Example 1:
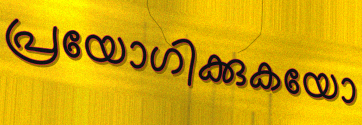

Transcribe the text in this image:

പ്രയോഗിക്കുകയോ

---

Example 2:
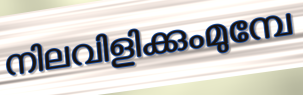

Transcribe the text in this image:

നിലവിളിക്കുംമുമ്പേ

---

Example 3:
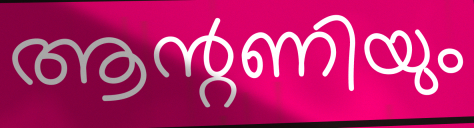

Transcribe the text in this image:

ആന്റണിയും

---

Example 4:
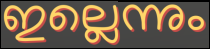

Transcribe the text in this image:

ഇല്ലെന്നും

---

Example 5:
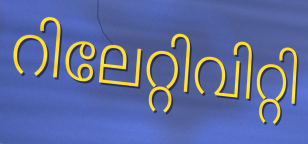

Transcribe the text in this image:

റിലേറ്റിവിറ്റി